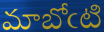
మాబోఁటి